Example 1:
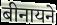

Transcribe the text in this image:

बीनायने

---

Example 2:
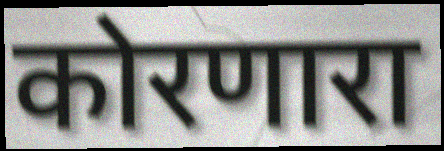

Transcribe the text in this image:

कोरणारा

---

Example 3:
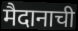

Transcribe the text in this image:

मैदानाची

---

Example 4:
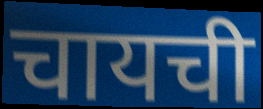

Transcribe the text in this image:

चायची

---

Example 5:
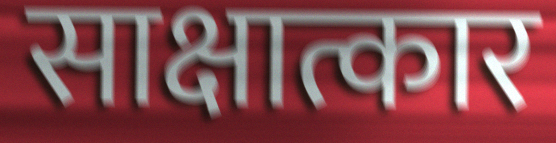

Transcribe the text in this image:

साक्षात्कार